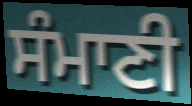
ਸੰਮਾਣੀ